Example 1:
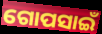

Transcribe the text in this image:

ଗୋପସାଇଁ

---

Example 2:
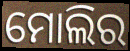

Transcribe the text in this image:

ମୋଲିର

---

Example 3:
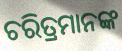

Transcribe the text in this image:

ଚରିତ୍ରମାନଙ୍କ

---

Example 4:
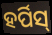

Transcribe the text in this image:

ହର୍ପିସ୍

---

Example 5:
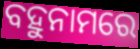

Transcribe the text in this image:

ବହୁନାମରେ